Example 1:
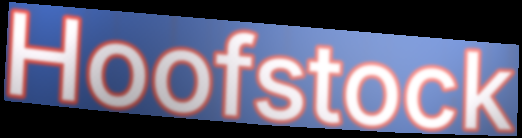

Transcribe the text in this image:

Hoofstock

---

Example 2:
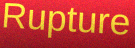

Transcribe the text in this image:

Rupture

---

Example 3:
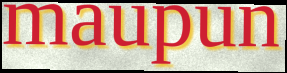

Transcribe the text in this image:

maupun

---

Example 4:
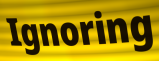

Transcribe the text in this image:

Ignoring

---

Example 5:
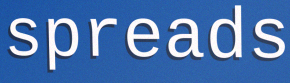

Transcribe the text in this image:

spreads